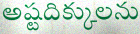
అష్టదిక్కులను